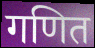
गणित